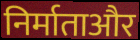
निर्माताऔर